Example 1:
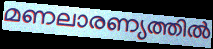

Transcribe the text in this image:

മണലാരണ്യത്തിൽ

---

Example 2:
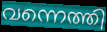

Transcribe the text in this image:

വന്നെത്തി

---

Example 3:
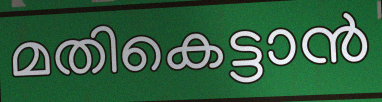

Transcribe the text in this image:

മതികെട്ടാൻ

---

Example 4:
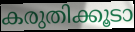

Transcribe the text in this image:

കരുതിക്കൂടാ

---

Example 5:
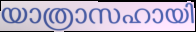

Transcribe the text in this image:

യാത്രാസഹായി